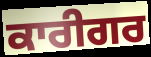
ਕਾਰੀਗਰ